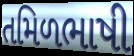
તમિળભાષી